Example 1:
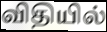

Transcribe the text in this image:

விதியில்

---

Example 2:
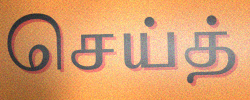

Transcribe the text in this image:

செய்த்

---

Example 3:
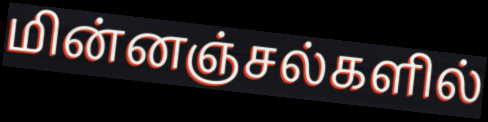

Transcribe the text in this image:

மின்னஞ்சல்களில்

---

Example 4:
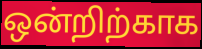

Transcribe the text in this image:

ஒன்றிற்காக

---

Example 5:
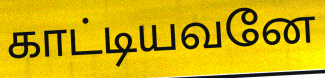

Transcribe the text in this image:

காட்டியவனே